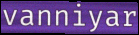
vanniyar